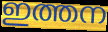
ഇത്തന